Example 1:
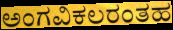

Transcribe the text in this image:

ಅಂಗವಿಕಲರಂತಹ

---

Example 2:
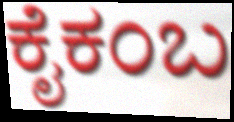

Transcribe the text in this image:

ಕೈಕಂಬ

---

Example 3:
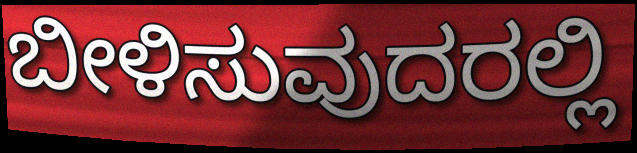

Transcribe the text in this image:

ಬೀಳಿಸುವುದರಲ್ಲಿ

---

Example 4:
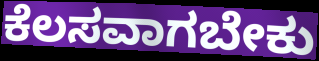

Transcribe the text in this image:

ಕೆಲಸವಾಗಬೇಕು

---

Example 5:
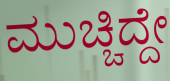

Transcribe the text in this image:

ಮುಚ್ಚಿದ್ದೇ